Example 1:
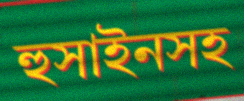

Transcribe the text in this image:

হুসাইনসহ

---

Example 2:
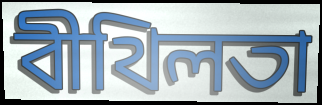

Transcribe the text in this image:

বীথিলতা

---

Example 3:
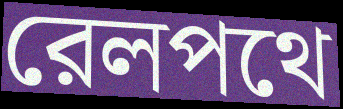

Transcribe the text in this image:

রেলপথে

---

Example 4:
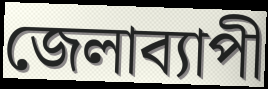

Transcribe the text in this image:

জেলাব্যাপী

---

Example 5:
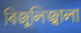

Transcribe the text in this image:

বিজুলিজ্বালা